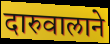
दारुवालाने